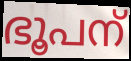
ഭൂപന്